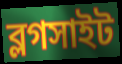
ব্লগসাইট